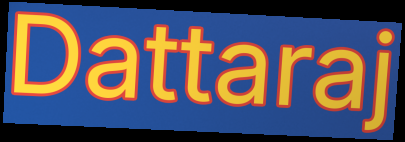
Dattaraj